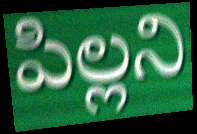
పిల్లని